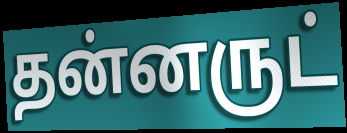
தன்னருட்